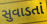
સુવાડતાં